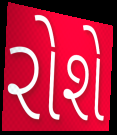
રોશે